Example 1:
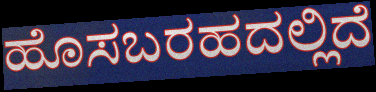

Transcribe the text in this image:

ಹೊಸಬರಹದಲ್ಲಿದೆ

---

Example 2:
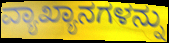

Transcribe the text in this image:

ವ್ಯಾಖ್ಯಾನಗಳನ್ನು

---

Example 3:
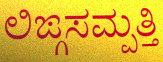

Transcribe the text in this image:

ಲಿಙ್ಗಸಮ್ಪತ್ತಿ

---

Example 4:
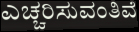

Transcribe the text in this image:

ಎಚ್ಚರಿಸುವಂತಿವೆ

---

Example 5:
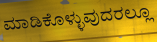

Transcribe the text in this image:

ಮಾಡಿಕೊಳ್ಳುವುದರಲ್ಲೂ